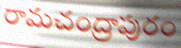
రామచంద్రాపురం